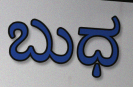
ಬುಧ